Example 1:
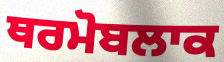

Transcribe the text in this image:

ਥਰਮੋਬਲਾਕ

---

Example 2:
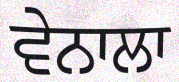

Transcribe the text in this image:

ਵੇਨਾਲਾ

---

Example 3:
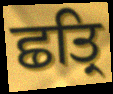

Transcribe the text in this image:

ਛਤ੍ਰਿ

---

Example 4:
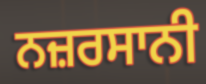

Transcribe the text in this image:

ਨਜ਼ਰਸਾਨੀ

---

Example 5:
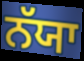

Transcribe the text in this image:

ਨੱਯਾ